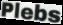
Plebs